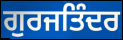
ਗੁਰਜਤਿੰਦਰ